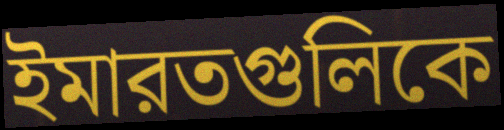
ইমারতগুলিকে